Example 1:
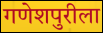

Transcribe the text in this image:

गणेशपुरीला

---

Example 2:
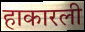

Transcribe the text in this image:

हाकारली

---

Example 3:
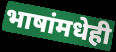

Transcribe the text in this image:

भाषांमधेही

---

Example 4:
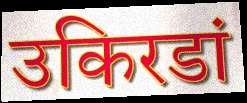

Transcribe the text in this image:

उकिरडां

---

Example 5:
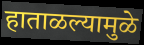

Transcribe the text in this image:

हाताळल्यामुळे